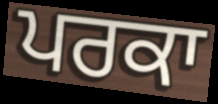
ਪਰਕਾ